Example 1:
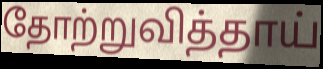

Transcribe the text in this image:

தோற்றுவித்தாய்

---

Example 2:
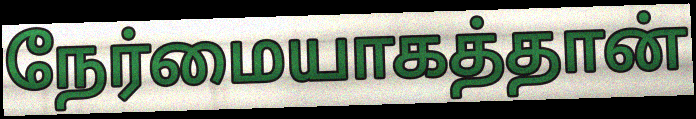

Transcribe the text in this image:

நேர்மையாகத்தான்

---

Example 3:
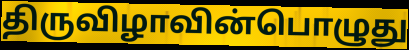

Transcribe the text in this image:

திருவிழாவின்பொழுது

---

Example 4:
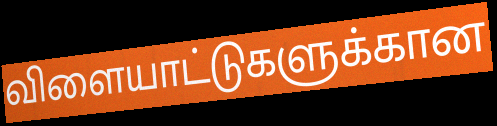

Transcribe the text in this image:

விளையாட்டுகளுக்கான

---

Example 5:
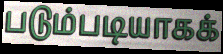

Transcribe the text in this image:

படும்படியாகக்